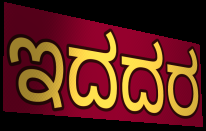
ಇದದರ